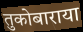
तुकोबाराया